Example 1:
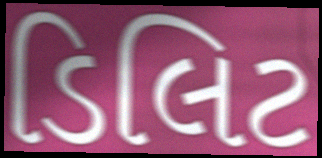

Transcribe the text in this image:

ડિલિટ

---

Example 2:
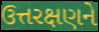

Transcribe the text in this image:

ઉત્તરક્ષણને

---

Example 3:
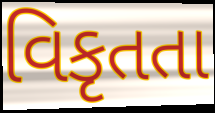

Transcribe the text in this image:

વિકૃતતા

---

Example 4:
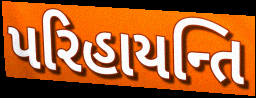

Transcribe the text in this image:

પરિહાયન્તિ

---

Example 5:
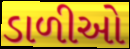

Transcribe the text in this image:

ડાળીઓ